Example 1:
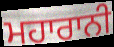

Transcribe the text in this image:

ਮਹਾਰਾਨੀ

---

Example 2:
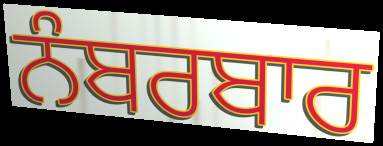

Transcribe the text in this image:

ਨੰਬਰਬਾਰ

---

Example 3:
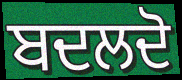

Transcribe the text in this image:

ਬਦਲਦੋ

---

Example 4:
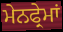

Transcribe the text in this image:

ਮੇਨਫ੍ਰੇਮਾਂ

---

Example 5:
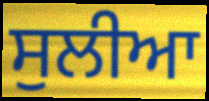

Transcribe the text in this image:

ਸੁਲੀਆ